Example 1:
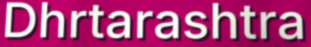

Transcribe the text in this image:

Dhrtarashtra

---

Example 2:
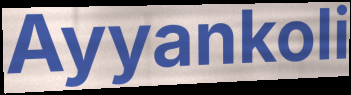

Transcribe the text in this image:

Ayyankoli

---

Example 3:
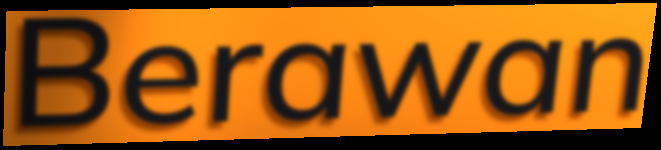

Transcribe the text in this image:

Berawan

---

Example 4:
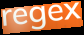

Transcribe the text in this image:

regex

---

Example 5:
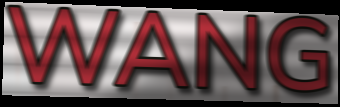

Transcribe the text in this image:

WANG